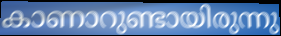
കാണാറുണ്ടായിരുന്നു